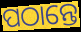
ପଠାନ୍ତେ